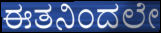
ಈತನಿಂದಲೇ